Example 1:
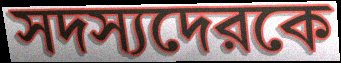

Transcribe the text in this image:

সদস্যদেরকে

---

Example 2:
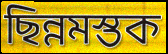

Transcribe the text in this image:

ছিন্নমস্তক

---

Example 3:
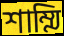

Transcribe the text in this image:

শাম্মি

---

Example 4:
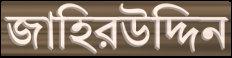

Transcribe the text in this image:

জাহিরউদ্দিন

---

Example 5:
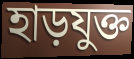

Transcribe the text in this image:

হাড়যুক্ত